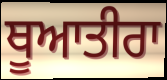
ਥੂਆਤੀਰਾ